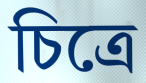
চিত্রে